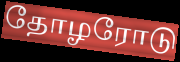
தோழரோடு